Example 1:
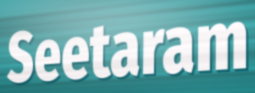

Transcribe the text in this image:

Seetaram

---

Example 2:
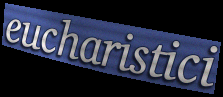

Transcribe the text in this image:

eucharistici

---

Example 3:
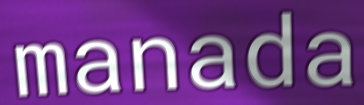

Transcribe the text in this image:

manada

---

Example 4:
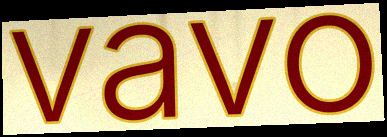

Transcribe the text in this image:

vavo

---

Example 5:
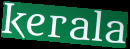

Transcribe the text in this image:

kerala